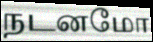
நடனமோ